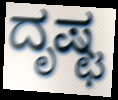
ದೃಷ್ಟ